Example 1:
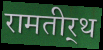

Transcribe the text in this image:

रामतीर्थ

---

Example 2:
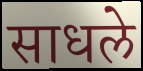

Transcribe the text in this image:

साधले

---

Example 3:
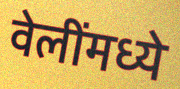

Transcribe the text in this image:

वेलींमध्ये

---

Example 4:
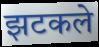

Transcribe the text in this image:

झटकले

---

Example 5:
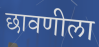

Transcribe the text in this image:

छावणीला